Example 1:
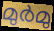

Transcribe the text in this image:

മുർമു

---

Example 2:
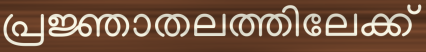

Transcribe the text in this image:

പ്രജ്ഞാതലത്തിലേക്ക്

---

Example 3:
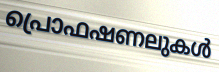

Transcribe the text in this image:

പ്രൊഫഷണലുകൾ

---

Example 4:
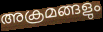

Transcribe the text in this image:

അക്രമങ്ങളും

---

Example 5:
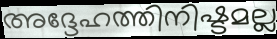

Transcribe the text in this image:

അദ്ദേഹത്തിനിഷ്ടമല്ല